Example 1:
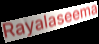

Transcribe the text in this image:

Rayalaseema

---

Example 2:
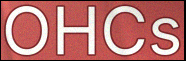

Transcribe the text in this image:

OHCs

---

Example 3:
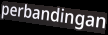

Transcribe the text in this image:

perbandingan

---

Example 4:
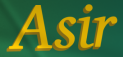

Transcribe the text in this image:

Asir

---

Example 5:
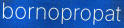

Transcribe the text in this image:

bornopropat